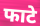
फाटे